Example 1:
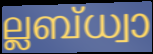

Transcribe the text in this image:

ല്ലബ്ധ്വാ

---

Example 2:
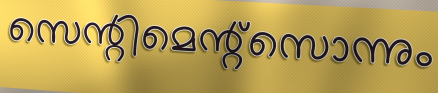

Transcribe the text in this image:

സെന്റിമെന്റ്സൊന്നും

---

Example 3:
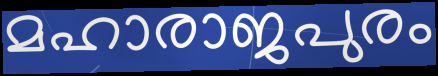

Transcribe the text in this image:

മഹാരാജപുരം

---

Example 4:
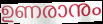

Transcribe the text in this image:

ഉണരാനും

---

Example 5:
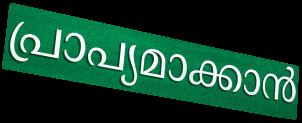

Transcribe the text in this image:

പ്രാപ്യമാക്കാൻ